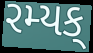
રમ્યક્